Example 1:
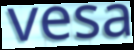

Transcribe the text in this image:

vesa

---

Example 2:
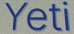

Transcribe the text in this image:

Yeti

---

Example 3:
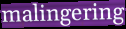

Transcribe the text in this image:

malingering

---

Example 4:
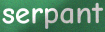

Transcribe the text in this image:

serpant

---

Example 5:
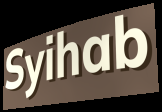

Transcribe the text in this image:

Syihab